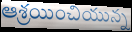
ఆశ్రయించియున్న